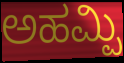
ಅಹಮ್ಪಿ